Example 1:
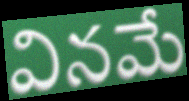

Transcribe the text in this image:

వినమే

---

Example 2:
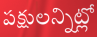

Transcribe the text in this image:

పక్షులన్నిట్లో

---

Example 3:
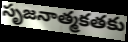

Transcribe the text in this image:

సృజనాత్మకతకు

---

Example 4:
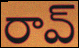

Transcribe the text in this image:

రావ్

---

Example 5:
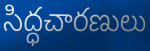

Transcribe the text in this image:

సిద్ధచారణులు